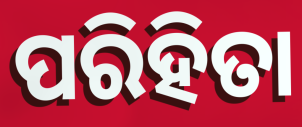
ପରିହିତା